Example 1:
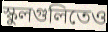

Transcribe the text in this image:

স্কুলগুলিতেও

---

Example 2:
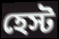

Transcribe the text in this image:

হেস্ট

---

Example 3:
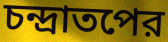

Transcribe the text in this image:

চন্দ্রাতপের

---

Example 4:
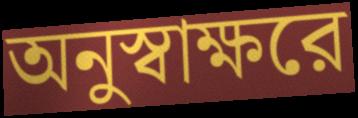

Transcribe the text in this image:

অনুস্বাক্ষরে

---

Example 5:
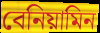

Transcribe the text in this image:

বেনিয়ামিন